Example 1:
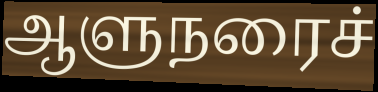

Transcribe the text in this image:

ஆளுநரைச்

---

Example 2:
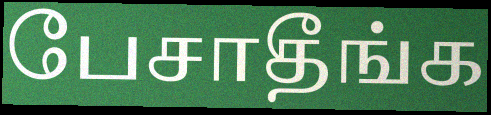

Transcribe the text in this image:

பேசாதீங்க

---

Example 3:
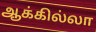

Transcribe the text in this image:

ஆக்கில்லா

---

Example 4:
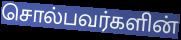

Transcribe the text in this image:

சொல்பவர்களின்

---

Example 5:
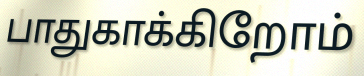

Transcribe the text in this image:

பாதுகாக்கிறோம்